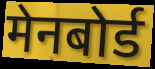
मेनबोर्ड